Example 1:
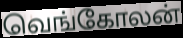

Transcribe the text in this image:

வெங்கோலன்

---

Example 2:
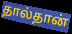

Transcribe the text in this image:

தால்தான்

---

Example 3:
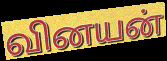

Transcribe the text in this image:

வினயன்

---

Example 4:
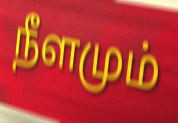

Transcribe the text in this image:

நீளமும்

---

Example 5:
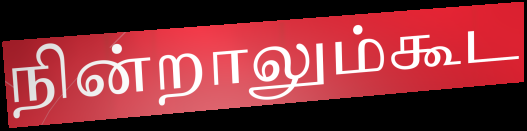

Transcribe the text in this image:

நின்றாலும்கூட